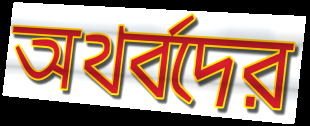
অথর্বদের